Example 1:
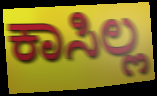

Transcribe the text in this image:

ಕಾಸಿಲ್ಲ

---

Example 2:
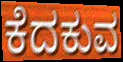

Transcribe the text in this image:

ಕೆದಕುವ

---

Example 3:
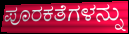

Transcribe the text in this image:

ಪೂರಕತೆಗಳನ್ನು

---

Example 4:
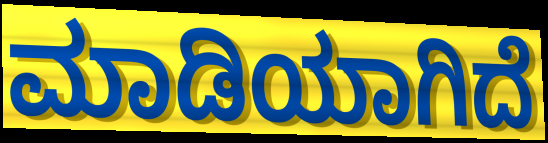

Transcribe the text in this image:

ಮಾಡಿಯಾಗಿದೆ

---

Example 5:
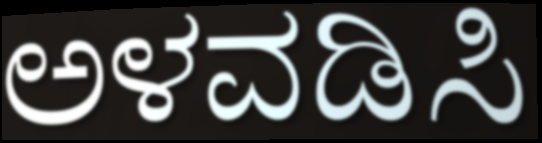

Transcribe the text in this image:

ಅಳವಡಿಸಿ